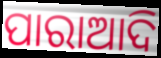
ପାରାଆଦି